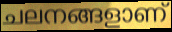
ചലനങ്ങളാണ്